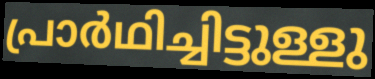
പ്രാർഥിച്ചിട്ടുള്ളു